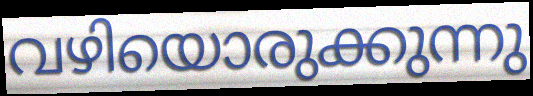
വഴിയൊരുക്കുന്നു